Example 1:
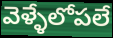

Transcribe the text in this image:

వెళ్ళేలోపలే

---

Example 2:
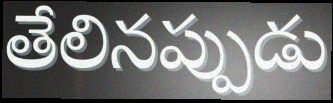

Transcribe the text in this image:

తేలినప్పుడు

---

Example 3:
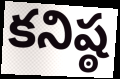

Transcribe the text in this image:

కనిష్ఠ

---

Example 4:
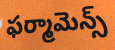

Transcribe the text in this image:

ఫర్మామెన్స్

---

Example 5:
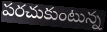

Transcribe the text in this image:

పరచుకుంటున్న